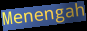
Menengah